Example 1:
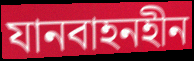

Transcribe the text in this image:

যানবাহনহীন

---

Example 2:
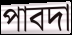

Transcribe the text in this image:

পাবদা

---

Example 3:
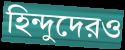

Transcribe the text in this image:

হিন্দুদেরও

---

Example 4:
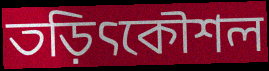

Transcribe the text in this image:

তড়িৎকৌশল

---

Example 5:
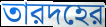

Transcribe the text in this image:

তারদহের